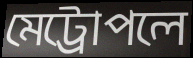
মেট্রোপলে